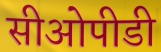
सीओपीडी